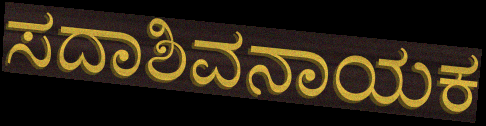
ಸದಾಶಿವನಾಯಕ